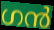
ഗൻ